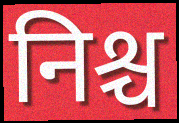
निश्च